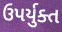
ઉપર્યુક્ત